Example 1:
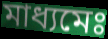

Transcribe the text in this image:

মাধ্যমেঃ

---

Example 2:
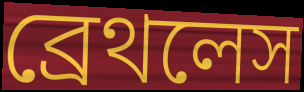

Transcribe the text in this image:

ব্রেথলেস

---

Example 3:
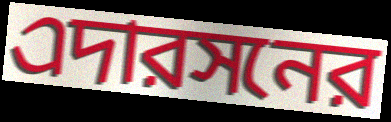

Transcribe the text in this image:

এদারসনের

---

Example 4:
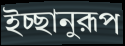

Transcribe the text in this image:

ইচ্ছানুরূপ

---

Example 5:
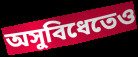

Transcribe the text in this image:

অসুবিধেতেও